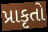
પ્રાકૃતો